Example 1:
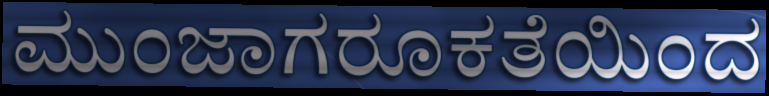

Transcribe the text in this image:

ಮುಂಜಾಗರೂಕತೆಯಿಂದ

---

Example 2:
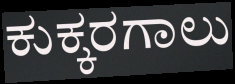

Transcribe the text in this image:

ಕುಕ್ಕರಗಾಲು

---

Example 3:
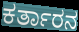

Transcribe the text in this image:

ಕರ್ತಾರನ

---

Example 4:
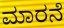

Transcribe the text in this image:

ಮಾರನೆ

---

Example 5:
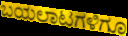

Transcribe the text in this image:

ಬಯಲಾಟಗಳಿಗೂ